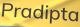
Pradipta